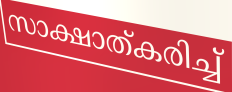
സാക്ഷാത്കരിച്ച്